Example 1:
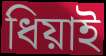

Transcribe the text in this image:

ধিয়াই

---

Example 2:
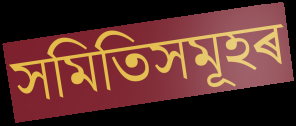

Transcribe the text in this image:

সমিতিসমূহৰ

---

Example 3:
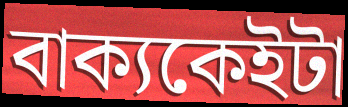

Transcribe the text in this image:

বাক্যকেইটা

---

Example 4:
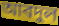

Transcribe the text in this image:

আবদুল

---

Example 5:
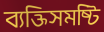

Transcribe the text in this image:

ব্যক্তিসমষ্টি